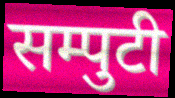
सम्पुटी